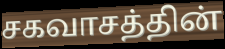
சகவாசத்தின்